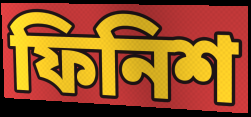
ফিনিশ